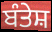
ਬੰਤੇਸ਼